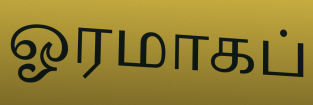
ஓரமாகப்